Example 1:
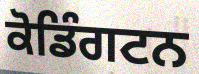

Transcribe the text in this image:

ਕੋਡਿੰਗਟਨ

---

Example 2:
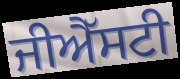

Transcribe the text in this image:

ਜੀਐੱਸਟੀ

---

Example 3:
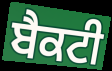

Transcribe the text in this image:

ਬੈਕਟੀ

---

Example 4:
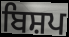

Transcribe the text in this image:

ਬਿਸ਼ਪ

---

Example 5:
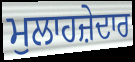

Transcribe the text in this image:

ਮੁਲਾਹਜ਼ੇਦਾਰ